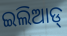
ଇଲିଆଡ୍